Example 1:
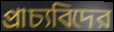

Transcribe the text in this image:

প্রাচ্যবিদের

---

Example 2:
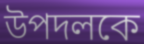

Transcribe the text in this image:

উপদলকে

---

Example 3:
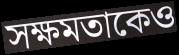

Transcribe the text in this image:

সক্ষমতাকেও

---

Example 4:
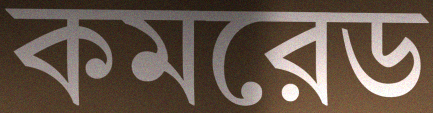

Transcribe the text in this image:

কমরেড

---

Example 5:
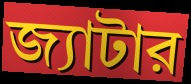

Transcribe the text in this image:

জ্যাটার